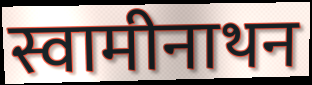
स्वामीनाथन